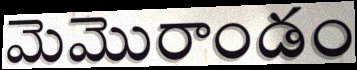
మెమొరాండం